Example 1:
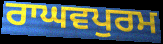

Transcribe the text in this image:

ਰਾਘਵਪੁਰਮ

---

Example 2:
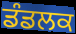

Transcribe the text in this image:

ਡੰਡਲਕ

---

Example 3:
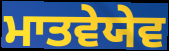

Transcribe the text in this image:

ਮਾਤਵੇਯੇਵ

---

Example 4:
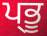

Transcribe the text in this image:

ਪ੍ਭੂ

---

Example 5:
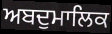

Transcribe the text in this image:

ਅਬਦੁਮਾਲਿਕ